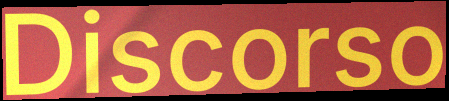
Discorso